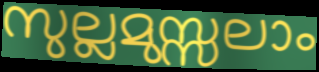
സുല്ലമുസ്സലാം